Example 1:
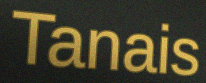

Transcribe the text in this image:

Tanais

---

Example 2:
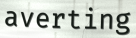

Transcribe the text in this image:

averting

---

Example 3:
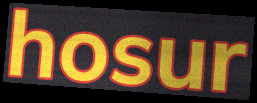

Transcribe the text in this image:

hosur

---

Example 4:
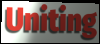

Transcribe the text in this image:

Uniting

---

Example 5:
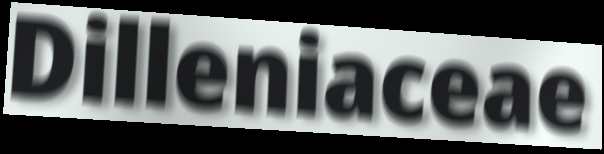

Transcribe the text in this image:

Dilleniaceae